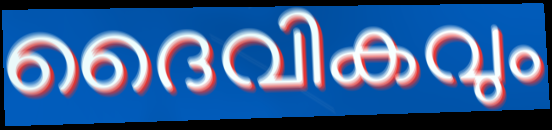
ദൈവികവും